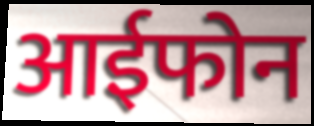
आईफोन